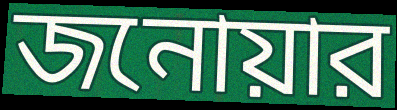
জনোয়ার